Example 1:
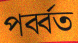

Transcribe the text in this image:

পর্ব্বত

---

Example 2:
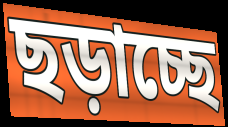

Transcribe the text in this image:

ছড়াচ্ছে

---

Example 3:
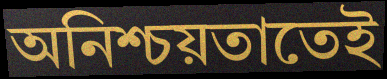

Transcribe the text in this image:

অনিশ্চয়তাতেই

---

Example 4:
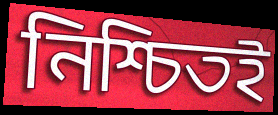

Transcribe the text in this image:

নিশ্চিতই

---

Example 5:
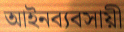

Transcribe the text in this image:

আইনব্যবসায়ী